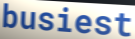
busiest